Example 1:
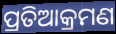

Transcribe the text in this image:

ପ୍ରତିଆକ୍ରମଣ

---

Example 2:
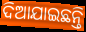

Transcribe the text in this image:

ଦିଆଯାଇଛନ୍ତି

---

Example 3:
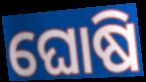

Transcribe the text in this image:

ଘୋଷି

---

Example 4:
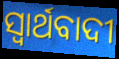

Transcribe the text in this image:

ସ୍ୱାର୍ଥବାଦୀ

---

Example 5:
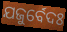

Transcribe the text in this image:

ଯଜୁର୍ବେଦଃ